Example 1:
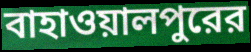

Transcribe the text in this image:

বাহাওয়ালপুরের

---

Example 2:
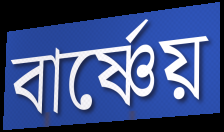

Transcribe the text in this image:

বার্ষ্ণেয়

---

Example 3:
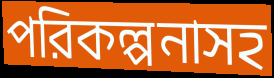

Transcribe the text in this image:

পরিকল্পনাসহ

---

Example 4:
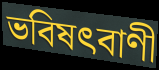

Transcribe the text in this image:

ভবিষৎবাণী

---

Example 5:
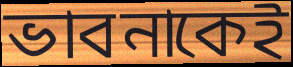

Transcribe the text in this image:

ভাবনাকেই